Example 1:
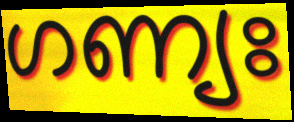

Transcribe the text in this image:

ഗണ്യഃ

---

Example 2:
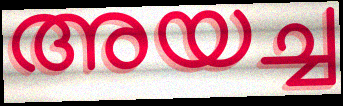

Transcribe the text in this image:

അയച്ച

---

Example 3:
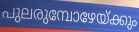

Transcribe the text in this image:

പുലരുമ്പോഴേയ്ക്കും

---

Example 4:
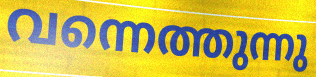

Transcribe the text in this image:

വന്നെത്തുന്നു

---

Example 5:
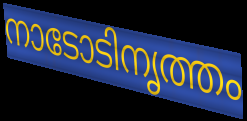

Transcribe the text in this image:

നാടോടിനൃത്തം